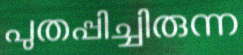
പുതപ്പിച്ചിരുന്ന